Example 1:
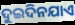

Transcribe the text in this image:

ଦୁଇଦିନଯାଏ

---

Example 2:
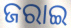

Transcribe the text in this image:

ଜରାଇ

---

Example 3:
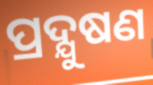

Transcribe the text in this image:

ପ୍ରଦ୍ଯୁଷଣ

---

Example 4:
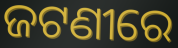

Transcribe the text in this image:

ଜଟଣୀରେ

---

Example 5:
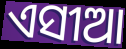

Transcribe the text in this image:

ଏସୀଆ